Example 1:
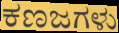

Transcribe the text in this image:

ಕಣಜಗಳು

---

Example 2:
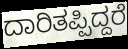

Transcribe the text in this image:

ದಾರಿತಪ್ಪಿದ್ದರೆ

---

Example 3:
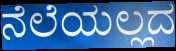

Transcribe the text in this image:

ನೆಲೆಯಲ್ಲದ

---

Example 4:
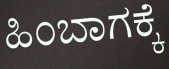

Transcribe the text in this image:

ಹಿಂಬಾಗಕ್ಕೆ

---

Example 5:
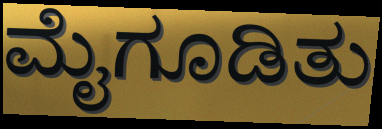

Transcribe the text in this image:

ಮೈಗೂಡಿತು